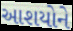
આશયોને